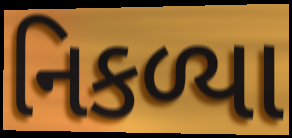
નિકળ્યા